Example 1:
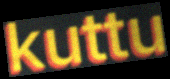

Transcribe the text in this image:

kuttu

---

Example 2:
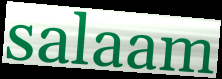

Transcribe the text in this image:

salaam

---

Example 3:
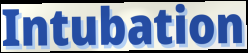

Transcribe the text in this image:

Intubation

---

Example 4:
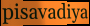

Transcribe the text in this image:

pisavadiya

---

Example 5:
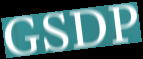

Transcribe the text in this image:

GSDP